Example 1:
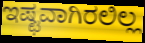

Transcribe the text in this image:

ಇಷ್ಟವಾಗಿರಲಿಲ್ಲ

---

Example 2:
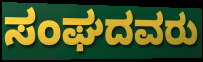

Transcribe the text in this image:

ಸಂಘದವರು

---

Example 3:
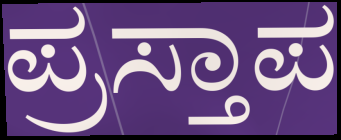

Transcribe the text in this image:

ಪ್ರಸ್ತಾಪ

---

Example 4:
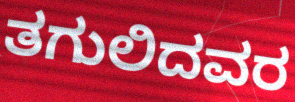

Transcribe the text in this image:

ತಗುಲಿದವರ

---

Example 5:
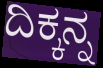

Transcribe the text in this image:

ದಿಕ್ಕನ್ನ